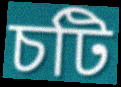
চটি